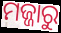
ମଜ୍ଜାରୁ